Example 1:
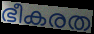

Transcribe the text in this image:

ഭീകരത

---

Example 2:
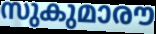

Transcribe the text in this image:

സുകുമാരൗ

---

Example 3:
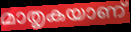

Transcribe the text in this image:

മാതൃകയാണ്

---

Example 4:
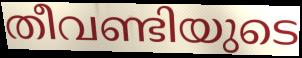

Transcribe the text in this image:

തീവണ്ടിയുടെ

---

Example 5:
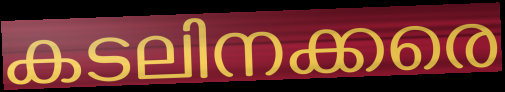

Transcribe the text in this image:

കടലിനക്കരെ